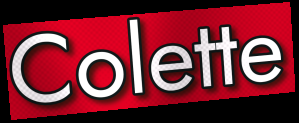
Colette